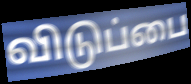
விடுப்பை